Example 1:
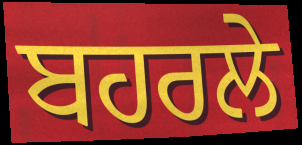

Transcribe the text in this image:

ਬਹਰਲੇ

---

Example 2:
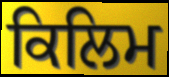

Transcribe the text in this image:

ਕਿਲਿਮ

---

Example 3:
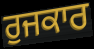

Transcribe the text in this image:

ਰੁਜਕਾਰ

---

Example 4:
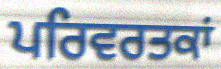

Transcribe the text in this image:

ਪਰਿਵਰਤਕਾਂ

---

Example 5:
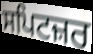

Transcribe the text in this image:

ਸਪਿਟਜ਼ਰ